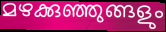
മഴക്കുഞ്ഞുങ്ങളും